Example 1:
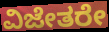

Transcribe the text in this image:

ವಿಜೇತರೇ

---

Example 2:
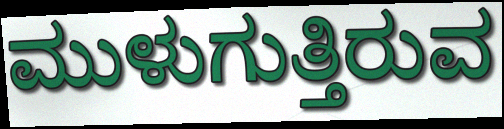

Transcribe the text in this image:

ಮುಳುಗುತ್ತಿರುವ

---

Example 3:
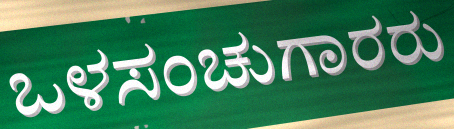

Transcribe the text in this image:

ಒಳಸಂಚುಗಾರರು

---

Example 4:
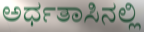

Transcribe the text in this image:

ಅರ್ಧತಾಸಿನಲ್ಲಿ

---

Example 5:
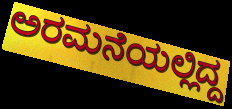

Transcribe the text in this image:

ಅರಮನೆಯಲ್ಲಿದ್ದ